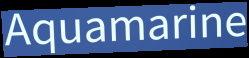
Aquamarine